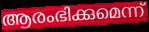
ആരംഭിക്കുമെന്ന്